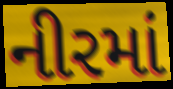
નીરમાં